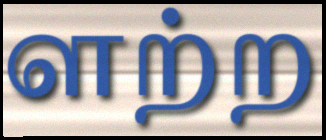
ளற்ற